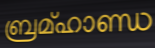
ബ്രമ്ഹാണ്ഡ